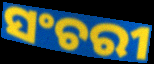
ସଂଚରୀ